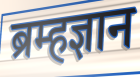
ब्रम्हज्ञान